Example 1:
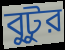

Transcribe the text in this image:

বুটুর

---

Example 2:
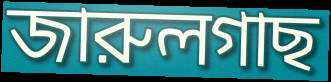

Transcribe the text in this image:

জারুলগাছ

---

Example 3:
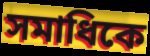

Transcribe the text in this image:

সমাধিকে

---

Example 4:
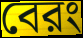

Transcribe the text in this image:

বেরং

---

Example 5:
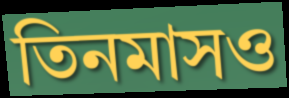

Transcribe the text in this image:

তিনমাসও